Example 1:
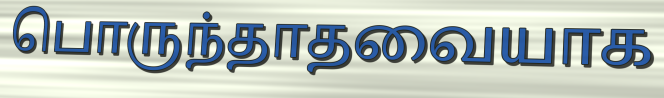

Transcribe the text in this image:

பொருந்தாதவையாக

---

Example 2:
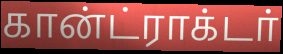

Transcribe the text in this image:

கான்ட்ராக்டர்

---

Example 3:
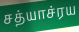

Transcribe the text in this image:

சத்யாச்ரய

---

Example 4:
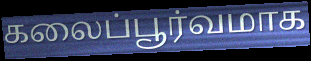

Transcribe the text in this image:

கலைப்பூர்வமாக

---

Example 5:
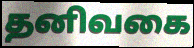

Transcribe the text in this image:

தனிவகை